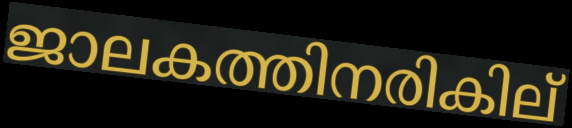
ജാലകത്തിനരികില്